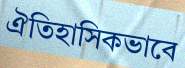
ঐতিহাসিকভাবে